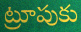
ట్రూపుకు